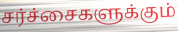
சர்ச்சைகளுக்கும்